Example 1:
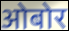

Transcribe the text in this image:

ओबोर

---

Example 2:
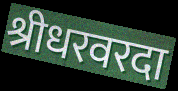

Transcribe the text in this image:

श्रीधरवरदा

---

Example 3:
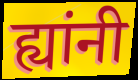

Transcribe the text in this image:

ह्यांनी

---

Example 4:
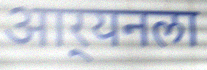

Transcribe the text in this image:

आर्यनला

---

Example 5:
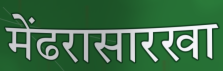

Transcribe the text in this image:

मेंढरासारखा